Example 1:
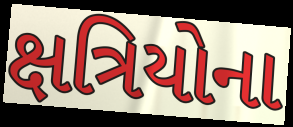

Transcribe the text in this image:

ક્ષત્રિયોના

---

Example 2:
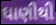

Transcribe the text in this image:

ઘાણીથી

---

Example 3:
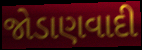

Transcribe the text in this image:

જોડાણવાદી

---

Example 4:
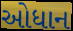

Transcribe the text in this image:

ઓધાન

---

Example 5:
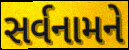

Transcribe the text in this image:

સર્વનામને